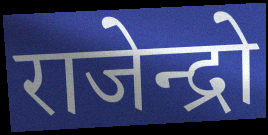
राजेन्द्रो